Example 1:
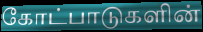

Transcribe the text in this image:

கோட்பாடுகளின்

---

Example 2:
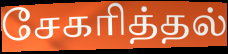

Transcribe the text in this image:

சேகரித்தல்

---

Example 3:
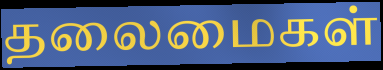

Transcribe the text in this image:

தலைமைகள்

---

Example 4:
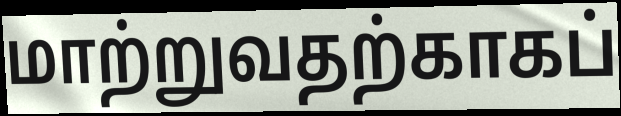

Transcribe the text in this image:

மாற்றுவதற்காகப்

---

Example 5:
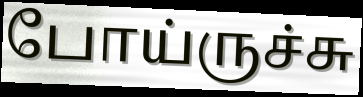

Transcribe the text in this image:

போய்ருச்சு